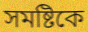
সমষ্টিকে